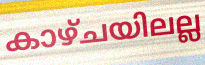
കാഴ്ചയിലല്ല